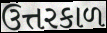
ઉત્તરકાળ